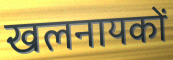
खलनायकों